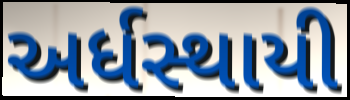
અર્ધસ્થાયી